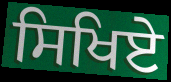
ਸਿਖਿਏ